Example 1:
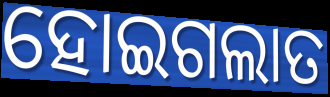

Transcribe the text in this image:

ହୋଇଗଲାତ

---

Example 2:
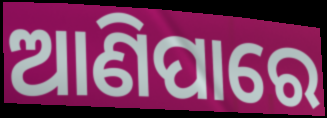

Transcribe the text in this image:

ଆଣିପାରେ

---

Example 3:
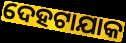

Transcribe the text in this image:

ଦେହଟାଯାକ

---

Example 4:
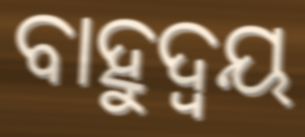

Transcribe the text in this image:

ବାହୁଦ୍ୱୟ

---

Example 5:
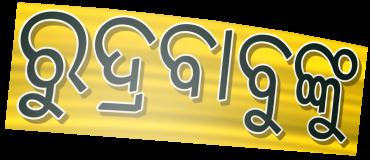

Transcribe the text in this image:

ରୁଦ୍ରବାବୁଙ୍କୁ